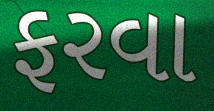
ફરવા